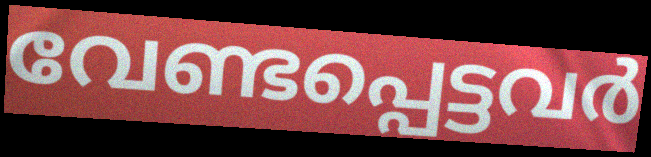
വേണ്ടപ്പെട്ടവർ